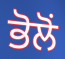
ਭੋਲੋਂ